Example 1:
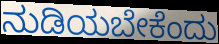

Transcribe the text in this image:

ನುಡಿಯಬೇಕೆಂದು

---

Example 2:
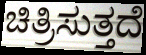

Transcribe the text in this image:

ಚಿತ್ರಿಸುತ್ತದೆ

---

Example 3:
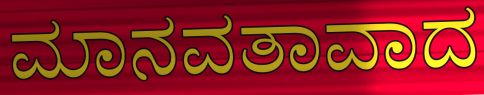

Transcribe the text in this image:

ಮಾನವತಾವಾದ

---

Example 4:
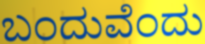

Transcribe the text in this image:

ಬಂದುವೆಂದು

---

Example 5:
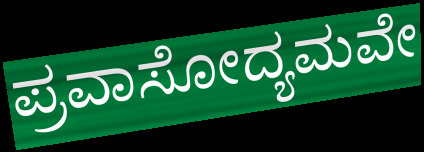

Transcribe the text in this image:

ಪ್ರವಾಸೋದ್ಯಮವೇ